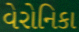
વેરોનિકા